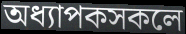
অধ্যাপকসকলে